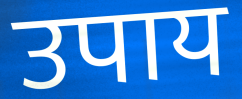
उपाय